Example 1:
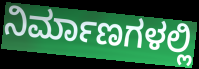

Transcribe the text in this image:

ನಿರ್ಮಾಣಗಳಲ್ಲಿ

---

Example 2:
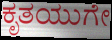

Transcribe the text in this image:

ಕೃತಯುಗೇ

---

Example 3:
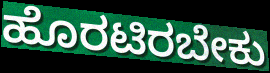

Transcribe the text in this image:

ಹೊರಟಿರಬೇಕು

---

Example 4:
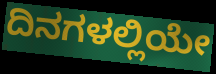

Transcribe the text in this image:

ದಿನಗಳಲ್ಲಿಯೇ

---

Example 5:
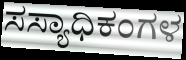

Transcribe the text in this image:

ಸಸ್ಯಾಧಿಕಂಗಳ